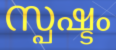
സ്പഷ്ടം